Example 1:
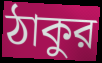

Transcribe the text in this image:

ঠাকুর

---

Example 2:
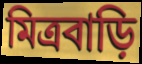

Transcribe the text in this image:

মিত্রবাড়ি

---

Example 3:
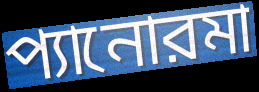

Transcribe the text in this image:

প্যানোরমা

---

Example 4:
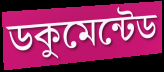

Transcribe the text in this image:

ডকুমেন্টেড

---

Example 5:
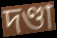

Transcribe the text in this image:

দণ্ডা